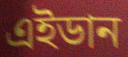
এইডান